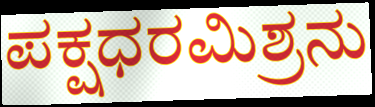
ಪಕ್ಷಧರಮಿಶ್ರನು